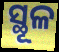
ସ୍ଥୂଳ